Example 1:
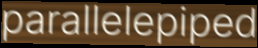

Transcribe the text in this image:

parallelepiped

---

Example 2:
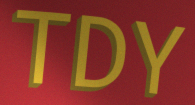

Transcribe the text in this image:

TDY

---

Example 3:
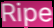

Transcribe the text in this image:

Ripe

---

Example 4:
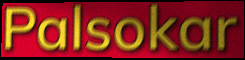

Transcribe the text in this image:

Palsokar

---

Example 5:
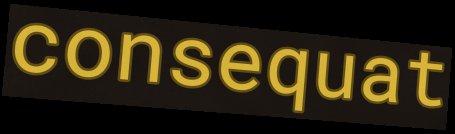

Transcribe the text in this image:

consequat